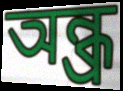
অন্ধ্ৰ